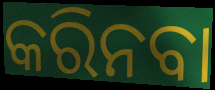
କରିନବା